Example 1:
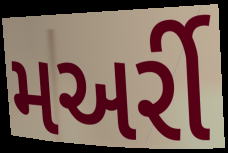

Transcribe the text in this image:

મઅર્રી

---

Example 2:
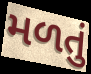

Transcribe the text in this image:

મળતું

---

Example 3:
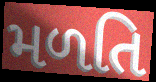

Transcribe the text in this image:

મળતિ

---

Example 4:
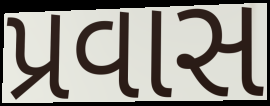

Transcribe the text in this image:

પ્રવાસ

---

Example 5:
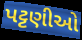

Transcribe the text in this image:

પટ્ટણીઓ